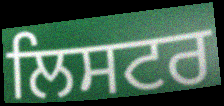
ਲਿਸਟਰ